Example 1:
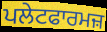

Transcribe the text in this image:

ਪਲੇਟਫਾਰਮਜ਼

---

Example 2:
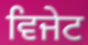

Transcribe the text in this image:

ਵਿਜੇਟ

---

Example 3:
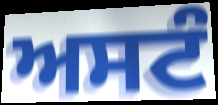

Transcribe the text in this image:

ਅਸਟੰ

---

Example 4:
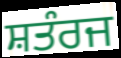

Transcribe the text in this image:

ਸ਼ਤੰਰਜ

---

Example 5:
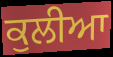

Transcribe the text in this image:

ਕੁਲੀਆ